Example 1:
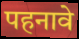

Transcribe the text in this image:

पहनावे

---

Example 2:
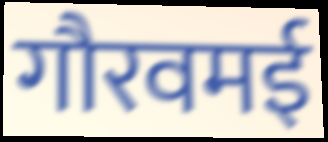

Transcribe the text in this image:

गौरवमई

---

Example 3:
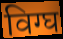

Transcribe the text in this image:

विग्घ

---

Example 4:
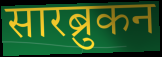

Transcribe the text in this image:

सारब्रुकन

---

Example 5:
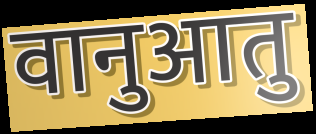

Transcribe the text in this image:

वानुआतु